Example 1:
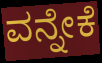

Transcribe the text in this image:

ವನ್ನೇಕೆ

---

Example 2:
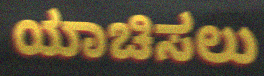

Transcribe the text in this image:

ಯಾಚಿಸಲು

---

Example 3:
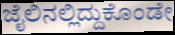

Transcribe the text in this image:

ಜೈಲಿನಲ್ಲಿದ್ದುಕೊಂಡೇ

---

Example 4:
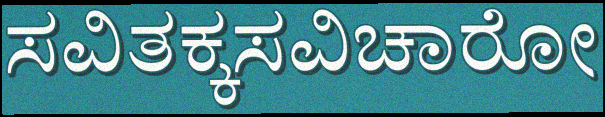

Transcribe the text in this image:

ಸವಿತಕ್ಕಸವಿಚಾರೋ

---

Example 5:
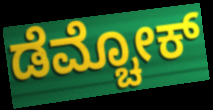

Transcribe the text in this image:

ಡೆಮ್ಚೋಕ್